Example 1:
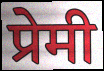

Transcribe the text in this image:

प्रेमी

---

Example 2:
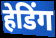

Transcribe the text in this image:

हेडिंग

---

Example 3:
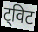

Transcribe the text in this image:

ट्विट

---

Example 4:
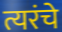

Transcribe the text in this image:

त्यरंचे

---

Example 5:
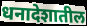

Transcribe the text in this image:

धनादेशातील